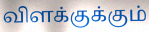
விளக்குக்கும்